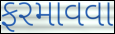
ફરમાવવા